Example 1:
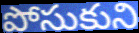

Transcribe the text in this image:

పోసుకుని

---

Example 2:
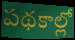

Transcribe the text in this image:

పథకాల్లో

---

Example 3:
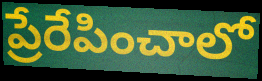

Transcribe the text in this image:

ప్రేరేపించాలో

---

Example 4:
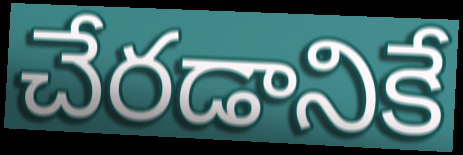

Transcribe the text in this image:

చేరడానికే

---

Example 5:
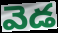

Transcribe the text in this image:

వెడ